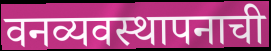
वनव्यवस्थापनाची